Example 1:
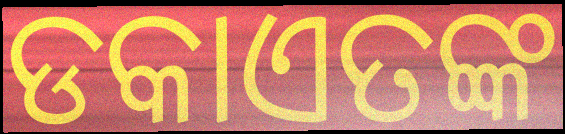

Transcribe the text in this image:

ଡକାଏତଙ୍କ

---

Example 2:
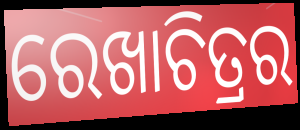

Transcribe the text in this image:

ରେଖାଚିତ୍ରର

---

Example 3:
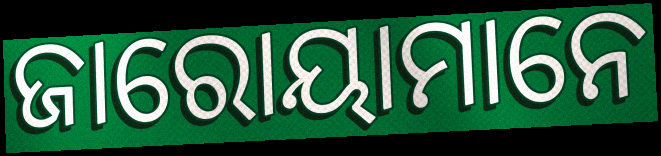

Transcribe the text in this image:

ଜାରୋୟାମାନେ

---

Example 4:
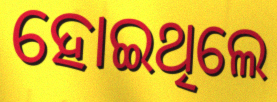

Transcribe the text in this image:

ହୋଇଥିଲେ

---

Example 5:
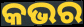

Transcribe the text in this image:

କଭର